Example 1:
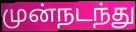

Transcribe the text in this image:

முன்நடந்து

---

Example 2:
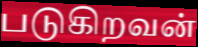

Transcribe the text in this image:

படுகிறவன்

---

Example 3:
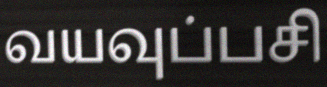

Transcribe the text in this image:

வயவுப்பசி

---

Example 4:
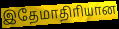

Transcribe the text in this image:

இதேமாதிரியான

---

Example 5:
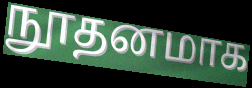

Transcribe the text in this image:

நூதனமாக